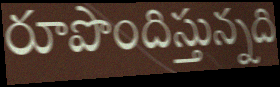
రూపొందిస్తున్నది